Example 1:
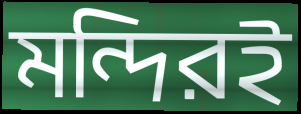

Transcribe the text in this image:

মন্দিরই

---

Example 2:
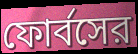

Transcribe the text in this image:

ফোর্বসের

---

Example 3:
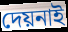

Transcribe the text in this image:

দেয়নাই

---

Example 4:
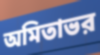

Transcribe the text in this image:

অমিতাভর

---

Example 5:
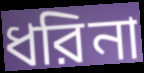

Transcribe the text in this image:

ধরিনা